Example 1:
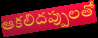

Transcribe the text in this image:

ఆకలిదప్పులతో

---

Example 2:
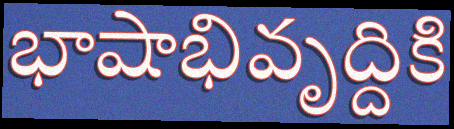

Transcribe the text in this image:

భాషాభివృద్దికి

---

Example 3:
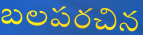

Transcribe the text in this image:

బలపరచిన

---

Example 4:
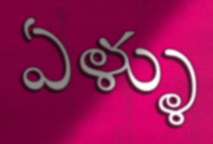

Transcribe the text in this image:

ఏళ్ళు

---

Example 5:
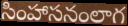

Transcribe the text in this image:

సింహాసనంలాగ